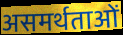
असमर्थताओं